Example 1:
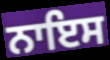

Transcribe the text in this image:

ਨਾਇਸ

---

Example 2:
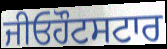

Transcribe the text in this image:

ਜੀਓਹੌਟਸਟਾਰ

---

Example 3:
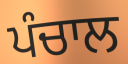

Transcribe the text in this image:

ਪੰਚਾਲ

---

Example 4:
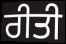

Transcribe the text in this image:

ਰੀਤੀ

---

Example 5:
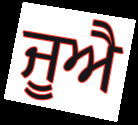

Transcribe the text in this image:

ਜੂਐ